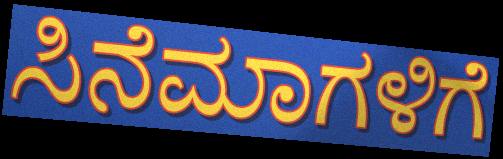
ಸಿನೆಮಾಗಳಿಗೆ